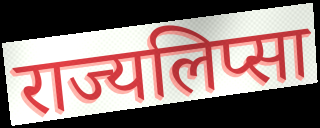
राज्यलिप्सा